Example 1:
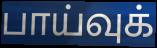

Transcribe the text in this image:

பாய்வுக்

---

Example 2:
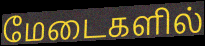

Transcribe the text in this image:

மேடைகளில்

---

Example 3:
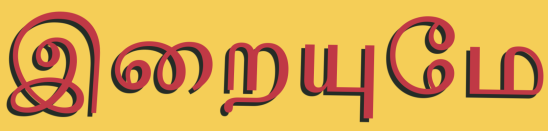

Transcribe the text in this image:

இறையுமே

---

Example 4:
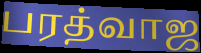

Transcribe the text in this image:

பரத்வாஜ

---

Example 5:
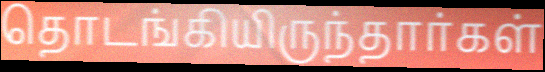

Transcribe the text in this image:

தொடங்கியிருந்தார்கள்